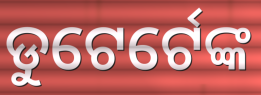
ଡୁଟେର୍ଟେଙ୍କ